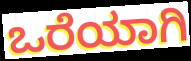
ಒರೆಯಾಗಿ